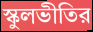
স্কুলভীতির